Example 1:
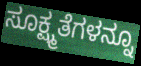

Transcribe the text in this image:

ಸೂಕ್ಷ್ಮತೆಗಳನ್ನೂ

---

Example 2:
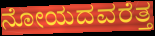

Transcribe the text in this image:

ನೋಯದವರೆತ್ತ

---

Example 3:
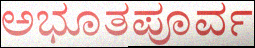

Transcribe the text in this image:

ಅಭೂತಪೂರ್ವ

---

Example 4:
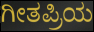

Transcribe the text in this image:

ಗೀತಪ್ರಿಯ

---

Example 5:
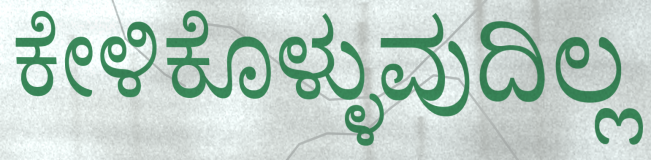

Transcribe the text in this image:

ಕೇಳಿಕೊಳ್ಳುವುದಿಲ್ಲ